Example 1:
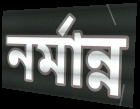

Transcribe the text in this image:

নর্মান্ন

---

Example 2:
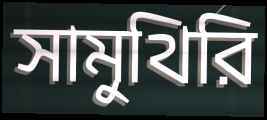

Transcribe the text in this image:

সামুথিরি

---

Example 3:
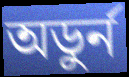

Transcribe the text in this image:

অডুর্ন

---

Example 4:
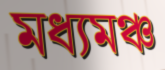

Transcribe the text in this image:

মধ্যমঞ্চ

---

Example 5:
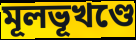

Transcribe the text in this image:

মূলভূখণ্ডে